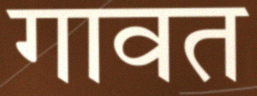
गावत